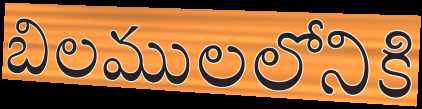
బిలములలోనికి